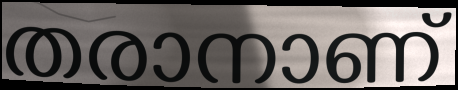
തരാനാണ്